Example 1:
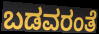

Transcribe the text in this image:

ಬಡವರಂತೆ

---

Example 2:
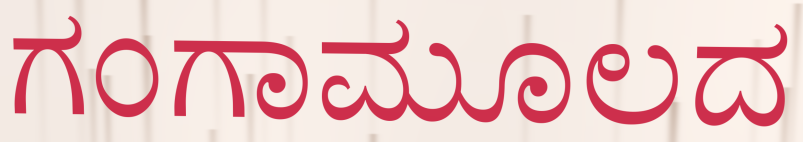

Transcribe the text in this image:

ಗಂಗಾಮೂಲದ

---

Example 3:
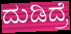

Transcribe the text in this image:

ದುಡಿದ್ರೆ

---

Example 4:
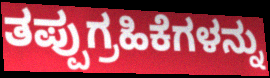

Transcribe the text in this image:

ತಪ್ಪುಗ್ರಹಿಕೆಗಳನ್ನು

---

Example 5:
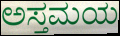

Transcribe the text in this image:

ಅಸ್ತಮಯ